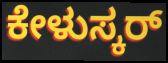
ಕೇಳುಸ್ಕರ್